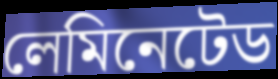
লেমিনেটেড